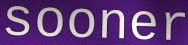
sooner